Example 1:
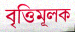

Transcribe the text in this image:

বৃত্তিমূলক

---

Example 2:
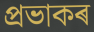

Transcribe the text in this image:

প্ৰভাকৰ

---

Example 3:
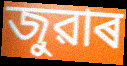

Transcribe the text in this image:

জুৱাৰ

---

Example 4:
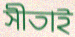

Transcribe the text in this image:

সীতাই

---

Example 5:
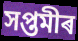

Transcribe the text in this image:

সপ্তমীৰ